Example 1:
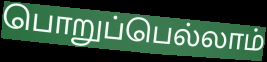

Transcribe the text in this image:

பொறுப்பெல்லாம்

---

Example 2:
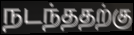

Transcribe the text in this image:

நடந்ததற்கு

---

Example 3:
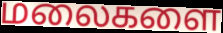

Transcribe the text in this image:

மலைகளை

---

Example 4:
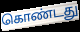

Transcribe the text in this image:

கொண்டது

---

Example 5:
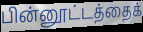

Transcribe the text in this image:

பின்னூட்டத்தைக்